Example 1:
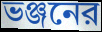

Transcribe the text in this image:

ভঞ্জনের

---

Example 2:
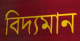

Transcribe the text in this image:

বিদ্যমান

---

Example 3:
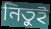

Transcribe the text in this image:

নিতুই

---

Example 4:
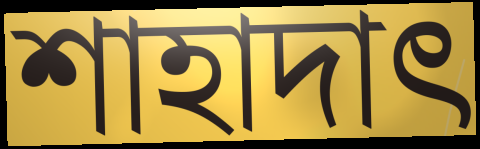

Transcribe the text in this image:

শাহাদাৎ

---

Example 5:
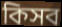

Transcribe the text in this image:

কিসব